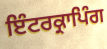
ਇੰਟਰਕ੍ਰਾਪਿੰਗ